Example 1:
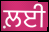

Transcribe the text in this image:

ਲ਼ਈ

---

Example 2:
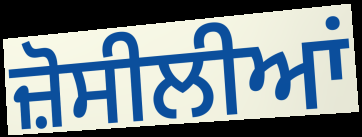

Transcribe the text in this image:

ਜ਼ੋਸੀਲੀਆਂ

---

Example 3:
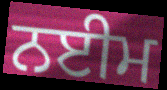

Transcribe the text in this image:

ਨਈਮ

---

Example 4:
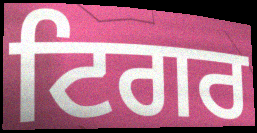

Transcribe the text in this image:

ਟਿਗਰ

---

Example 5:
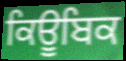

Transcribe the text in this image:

ਕਿਊਬਿਕ